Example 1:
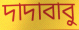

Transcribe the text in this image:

দাদাবাবু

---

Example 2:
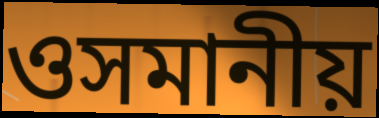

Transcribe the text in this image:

ওসমানীয়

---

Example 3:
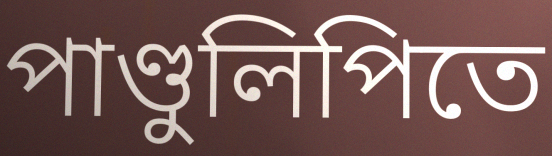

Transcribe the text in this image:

পাণ্ডুলিপিতে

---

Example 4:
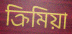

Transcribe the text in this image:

ক্রিমিয়া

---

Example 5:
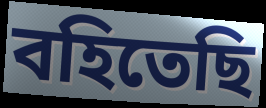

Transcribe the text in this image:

বহিতেছি